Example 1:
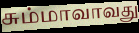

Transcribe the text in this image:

சும்மாவாவது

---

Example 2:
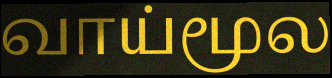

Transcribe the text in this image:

வாய்மூல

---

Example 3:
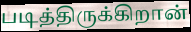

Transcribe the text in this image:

படித்திருக்கிறான்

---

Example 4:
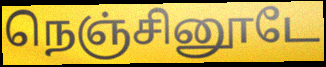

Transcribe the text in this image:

நெஞ்சினூடே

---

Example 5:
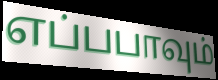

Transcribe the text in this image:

எப்பபாவும்